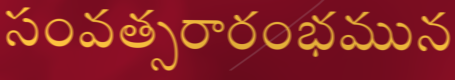
సంవత్సరారంభమున